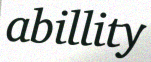
abillity